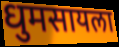
धुमसायला